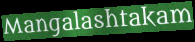
Mangalashtakam